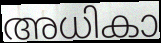
അധികാ